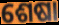
ଶେଷା